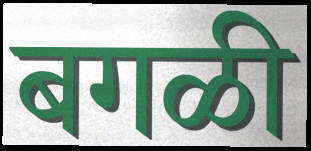
बगळी